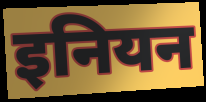
इनियन